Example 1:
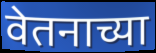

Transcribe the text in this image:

वेतनाच्या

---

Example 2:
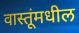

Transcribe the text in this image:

वास्तूंमधील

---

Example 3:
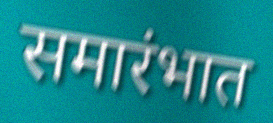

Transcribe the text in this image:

समारंभात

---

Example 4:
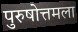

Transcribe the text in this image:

पुरुषोत्तमला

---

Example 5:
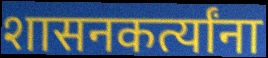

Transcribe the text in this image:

शासनकर्त्यांना